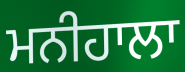
ਮਨੀਹਾਲਾ